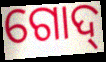
ଗୋଦ୍